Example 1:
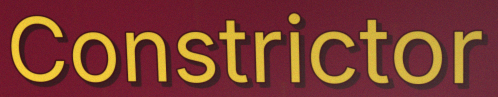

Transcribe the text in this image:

Constrictor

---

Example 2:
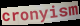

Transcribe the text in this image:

cronyism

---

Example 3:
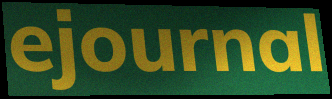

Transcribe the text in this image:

ejournal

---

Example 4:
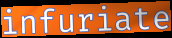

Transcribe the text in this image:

infuriate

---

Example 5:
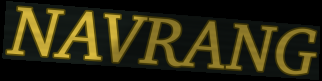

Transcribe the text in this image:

NAVRANG